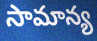
సామాన్య